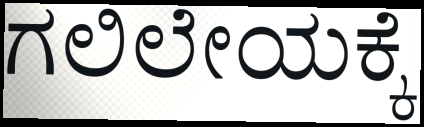
ಗಲಿಲೇಯಕ್ಕೆ